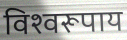
विश्वरूपाय